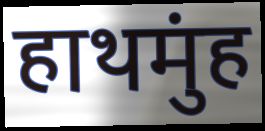
हाथमुंह